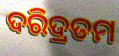
ଦରିଦ୍ରତମ